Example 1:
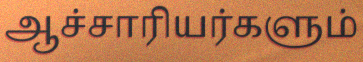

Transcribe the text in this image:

ஆச்சாரியர்களும்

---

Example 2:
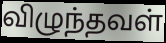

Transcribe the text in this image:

விழுந்தவள்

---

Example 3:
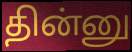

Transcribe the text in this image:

தின்னு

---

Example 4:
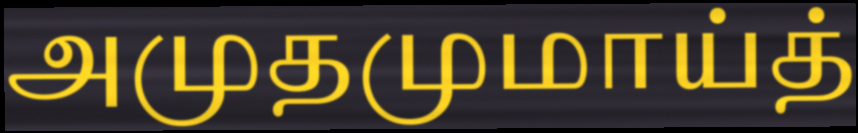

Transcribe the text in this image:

அமுதமுமாய்த்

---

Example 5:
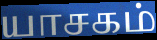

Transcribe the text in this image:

யாசகம்